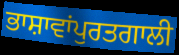
ਭਾਸ਼ਾਵਾਂਪੁਰਤਗਾਲੀ